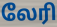
லேரி